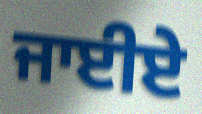
ਜਾਈਏ